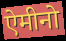
ऐमीनो